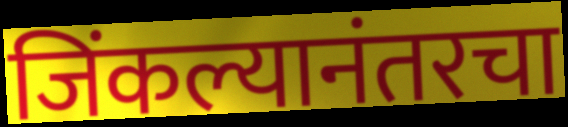
जिंकल्यानंतरचा